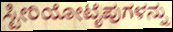
ಸ್ಟೀರಿಯೋಟೈಪುಗಳನ್ನು